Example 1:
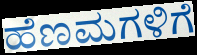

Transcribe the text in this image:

ಹೆಣಮಗಳಿಗೆ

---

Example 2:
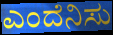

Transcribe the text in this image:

ಎಂದೆನಿಸು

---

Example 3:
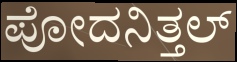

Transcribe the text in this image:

ಪೋದನಿತ್ತಲ್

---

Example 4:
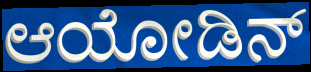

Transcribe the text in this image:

ಆಯೋಡಿನ್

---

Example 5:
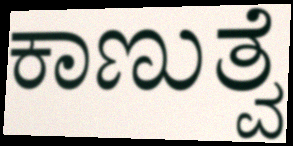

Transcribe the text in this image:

ಕಾಣುತ್ವೆ